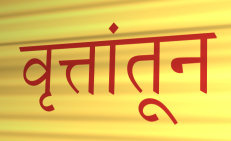
वृत्तांतून